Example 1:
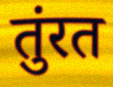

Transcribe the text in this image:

तुंरत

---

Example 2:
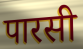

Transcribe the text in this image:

पारसी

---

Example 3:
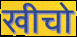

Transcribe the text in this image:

खीचो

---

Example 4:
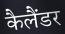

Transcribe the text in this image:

कैलैंडर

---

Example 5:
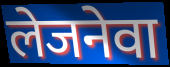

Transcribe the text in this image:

लेजनेवा